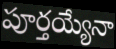
పూర్తయ్యేనా